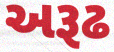
અરૂઢ